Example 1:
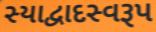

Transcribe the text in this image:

સ્યાદ્વાદસ્વરૂપ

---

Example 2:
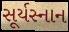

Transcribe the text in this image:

સૂર્યસ્નાન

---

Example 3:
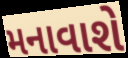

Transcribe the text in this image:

મનાવાશે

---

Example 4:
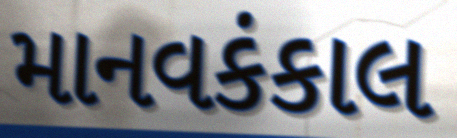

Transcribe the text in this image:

માનવકંકાલ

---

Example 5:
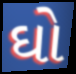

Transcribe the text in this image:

ઘો